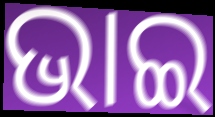
ଭାଇ